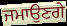
ਜਮਾਉਣਗੇ